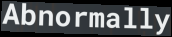
Abnormally